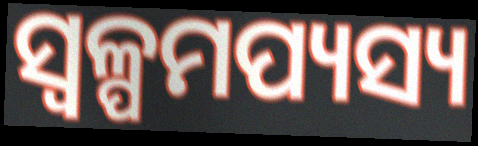
ସ୍ୱଳ୍ପମପ୍ୟସ୍ୟ